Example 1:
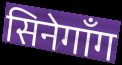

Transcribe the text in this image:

सिनेगाँग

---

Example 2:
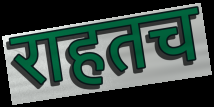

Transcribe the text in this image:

राहतच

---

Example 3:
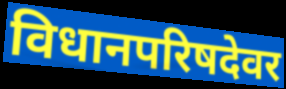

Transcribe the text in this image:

विधानपरिषदेवर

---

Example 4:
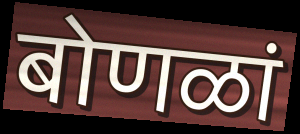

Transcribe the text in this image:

बोणळां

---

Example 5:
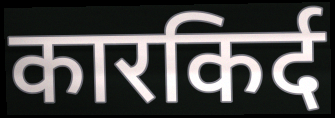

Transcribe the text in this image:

कारकिर्द